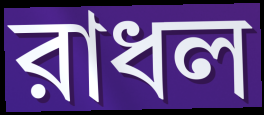
রাধল